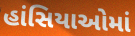
હાંસિયાઓમાં